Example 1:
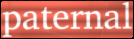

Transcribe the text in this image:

paternal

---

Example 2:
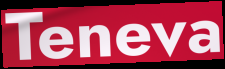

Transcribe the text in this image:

Teneva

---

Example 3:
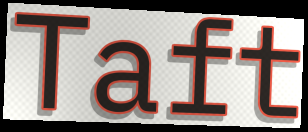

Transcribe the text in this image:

Taft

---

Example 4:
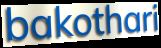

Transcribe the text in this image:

bakothari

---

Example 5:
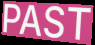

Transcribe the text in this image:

PAST